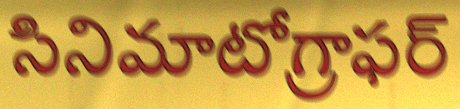
సినిమాటోగ్రాఫర్